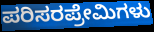
ಪರಿಸರಪ್ರೇಮಿಗಳು